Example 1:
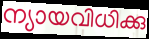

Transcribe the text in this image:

ന്യായവിധിക്കു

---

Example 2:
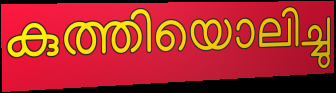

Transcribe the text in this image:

കുത്തിയൊലിച്ചു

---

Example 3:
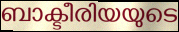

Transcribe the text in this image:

ബാക്ടീരിയയുടെ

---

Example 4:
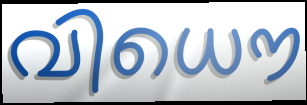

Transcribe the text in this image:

വിധൌ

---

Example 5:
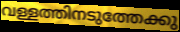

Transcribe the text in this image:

വള്ളത്തിനടുത്തേക്കു